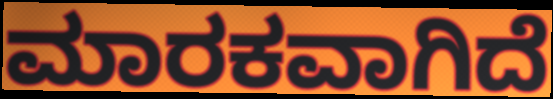
ಮಾರಕವಾಗಿದೆ